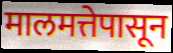
मालमत्तेपासून